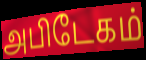
அபிடேகம்